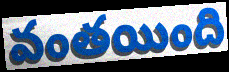
వంతయింది